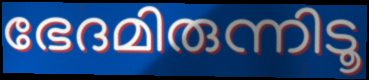
ഭേദമിരുന്നിടൂ